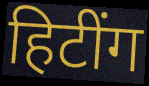
हिटींग